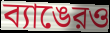
ব্যাঙেরও